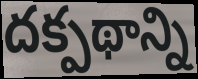
దక్పథాన్ని